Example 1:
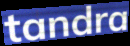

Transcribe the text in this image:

tandra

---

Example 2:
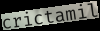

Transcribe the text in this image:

crictamil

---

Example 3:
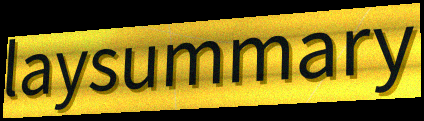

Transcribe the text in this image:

laysummary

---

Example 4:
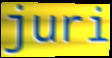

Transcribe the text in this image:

juri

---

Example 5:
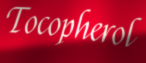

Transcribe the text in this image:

Tocopherol